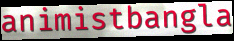
animistbangla